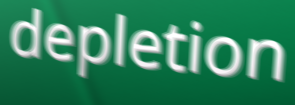
depletion